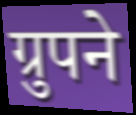
ग्रुपने